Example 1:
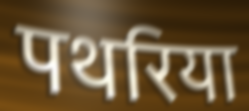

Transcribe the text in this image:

पथरिया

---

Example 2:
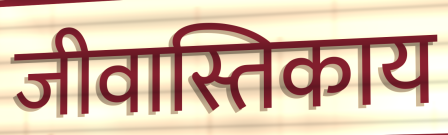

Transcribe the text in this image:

जीवास्तिकाय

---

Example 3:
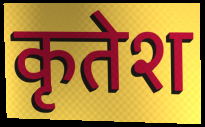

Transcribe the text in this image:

कृतेश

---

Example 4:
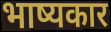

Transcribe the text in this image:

भाष्यकार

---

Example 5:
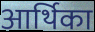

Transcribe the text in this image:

आर्थिका